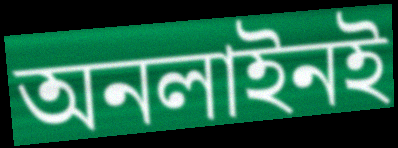
অনলাইনই